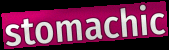
stomachic